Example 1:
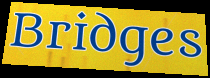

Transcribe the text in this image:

Bridges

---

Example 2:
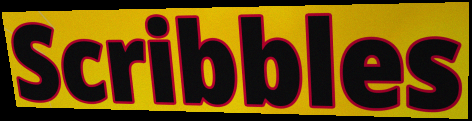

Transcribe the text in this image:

Scribbles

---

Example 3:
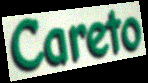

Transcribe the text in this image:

Careto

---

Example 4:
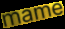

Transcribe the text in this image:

mame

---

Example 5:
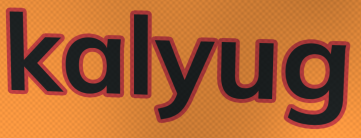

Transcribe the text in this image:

kalyug